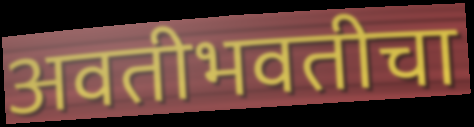
अवतीभवतीचा